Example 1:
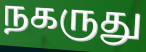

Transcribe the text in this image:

நகருது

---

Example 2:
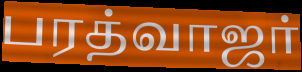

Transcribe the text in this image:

பரத்வாஜர்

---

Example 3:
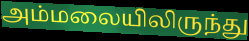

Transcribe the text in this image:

அம்மலையிலிருந்து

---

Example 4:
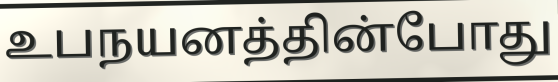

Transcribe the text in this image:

உபநயனத்தின்போது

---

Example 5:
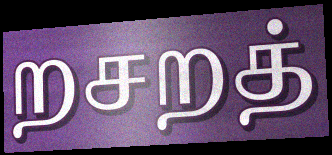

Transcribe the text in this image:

றசறத்